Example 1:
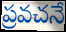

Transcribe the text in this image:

ప్రవచనే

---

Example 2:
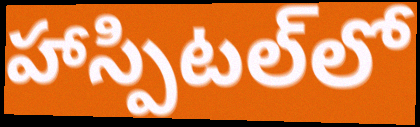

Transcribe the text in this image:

హాస్పిటల్‌లో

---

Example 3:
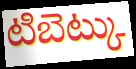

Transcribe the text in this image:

టిబెట్కు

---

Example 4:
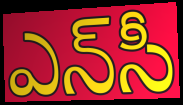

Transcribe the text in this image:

ఎన్‌సీ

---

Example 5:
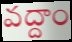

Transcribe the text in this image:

వద్దాం